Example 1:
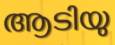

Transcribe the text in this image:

ആടിയു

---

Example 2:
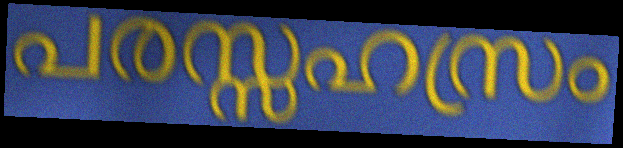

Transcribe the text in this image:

പരസ്സഹസ്രം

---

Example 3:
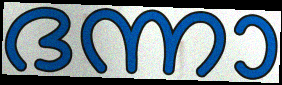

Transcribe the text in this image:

ദന്നാ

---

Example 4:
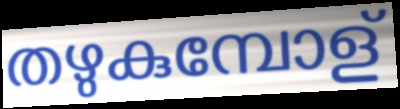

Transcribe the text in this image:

തഴുകുമ്പോള്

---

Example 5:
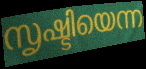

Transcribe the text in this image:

സൃഷ്ടിയെന്ന